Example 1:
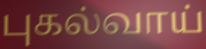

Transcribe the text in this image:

புகல்வாய்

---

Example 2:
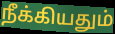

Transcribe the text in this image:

நீக்கியதும்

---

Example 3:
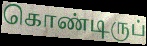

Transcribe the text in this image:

கொண்டிருப்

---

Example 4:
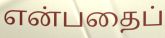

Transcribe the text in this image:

என்பதைப்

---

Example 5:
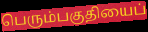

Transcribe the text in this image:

பெரும்பகுதியைப்